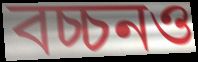
বচ্চনও